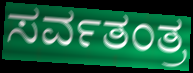
ಸರ್ವತಂತ್ರ